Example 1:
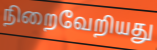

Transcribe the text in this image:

நிறைவேறியது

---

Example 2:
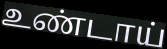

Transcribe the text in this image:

உண்டாய்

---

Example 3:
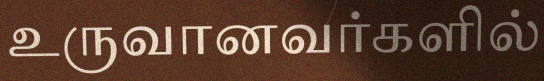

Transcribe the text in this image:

உருவானவர்களில்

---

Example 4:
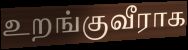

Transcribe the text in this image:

உறங்குவீராக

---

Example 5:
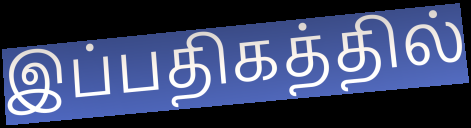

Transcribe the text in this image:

இப்பதிகத்தில்